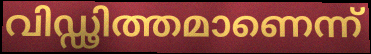
വിഡ്ഢിത്തമാണെന്ന്